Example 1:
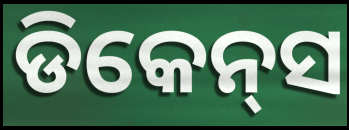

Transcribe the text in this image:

ଡିକେନ୍‌ସ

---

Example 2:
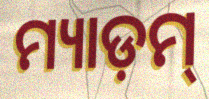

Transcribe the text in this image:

ମ୍ୟାଡ଼ମ୍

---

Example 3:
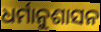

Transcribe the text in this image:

ଧର୍ମାନୁଶାସନ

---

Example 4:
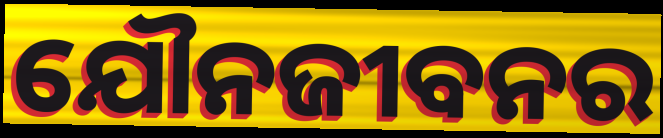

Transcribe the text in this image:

ଯୌନଜୀବନର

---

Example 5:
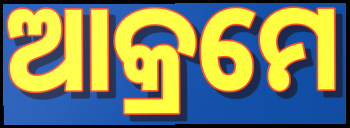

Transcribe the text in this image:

ଆକ୍ରମେ